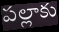
పల్లాకు